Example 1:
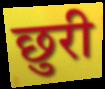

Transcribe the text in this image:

छुरी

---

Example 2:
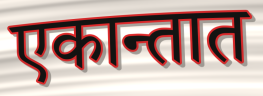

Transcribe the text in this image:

एकान्तात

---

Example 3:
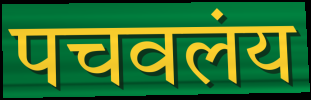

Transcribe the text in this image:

पचवलंय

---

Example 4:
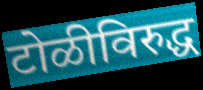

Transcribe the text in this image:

टोळीविरुद्ध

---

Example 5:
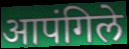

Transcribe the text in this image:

आपंगिले